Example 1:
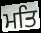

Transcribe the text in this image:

ਮਤਿ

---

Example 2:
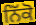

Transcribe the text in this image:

ਨਿੱਕੋ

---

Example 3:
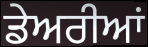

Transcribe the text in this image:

ਡੇਅਰੀਆਂ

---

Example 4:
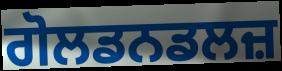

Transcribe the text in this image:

ਗੋਲਡਨਡਲਜ਼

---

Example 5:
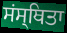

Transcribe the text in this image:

ਸਂਸ੍ਥਿਤਾ